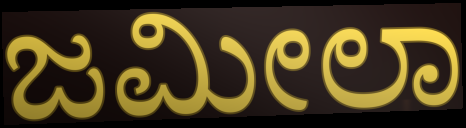
ಜಮೀಲಾ